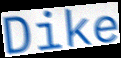
Dike